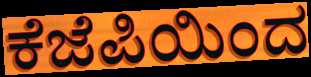
ಕೆಜೆಪಿಯಿಂದ